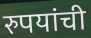
रुपयांची